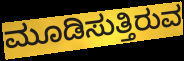
ಮೂಡಿಸುತ್ತಿರುವ